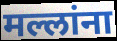
मल्लांना